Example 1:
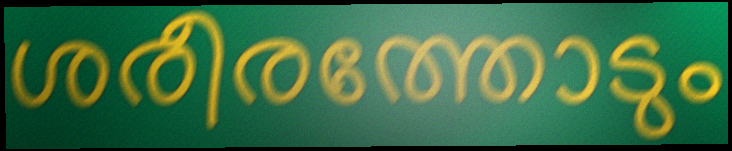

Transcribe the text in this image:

ശരീരത്തോടും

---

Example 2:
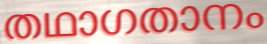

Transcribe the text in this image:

തഥാഗതാനം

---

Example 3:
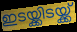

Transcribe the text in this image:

ഇടയ്ക്കിടയ്ക്ക്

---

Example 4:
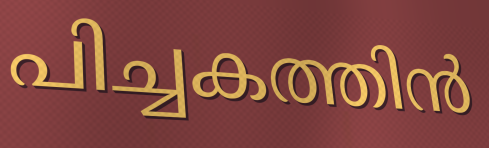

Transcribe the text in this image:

പിച്ചകത്തിൻ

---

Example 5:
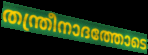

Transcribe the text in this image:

തന്ത്രീനാദത്തോടെ